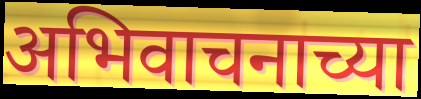
अभिवाचनाच्या